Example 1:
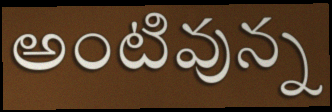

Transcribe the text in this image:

అంటివున్న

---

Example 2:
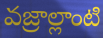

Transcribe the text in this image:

వజ్రాల్లాంటి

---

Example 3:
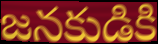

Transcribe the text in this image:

జనకుడికి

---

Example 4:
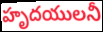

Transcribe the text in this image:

హృదయులనీ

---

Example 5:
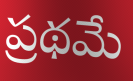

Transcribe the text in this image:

ప్రథమే